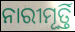
ନାରୀମୂର୍ତ୍ତି